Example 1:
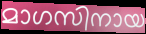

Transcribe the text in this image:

മാഗസിനായ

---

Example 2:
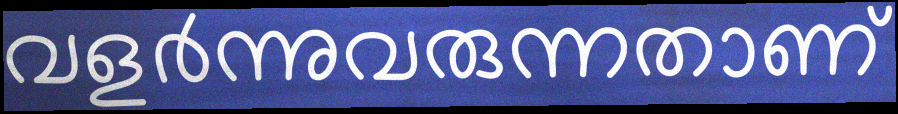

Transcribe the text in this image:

വളർന്നുവരുന്നതാണ്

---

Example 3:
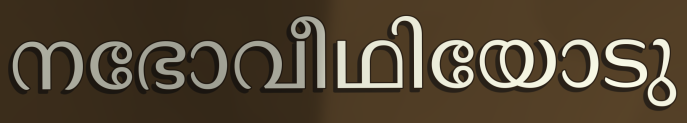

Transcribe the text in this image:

നഭോവീഥിയോടു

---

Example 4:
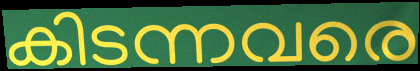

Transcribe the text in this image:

കിടന്നവരെ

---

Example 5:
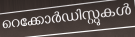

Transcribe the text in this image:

റെക്കോർഡിസ്റ്റുകൾ